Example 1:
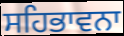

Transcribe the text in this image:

ਸਹਿਭਾਵਨਾ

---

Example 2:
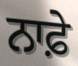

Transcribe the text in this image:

ਨਾਫ਼ੇ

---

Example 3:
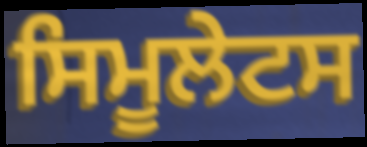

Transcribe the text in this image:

ਸਿਮੂਲੇਟਸ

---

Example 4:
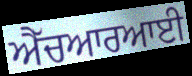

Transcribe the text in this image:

ਐੱਚਆਰਆਈ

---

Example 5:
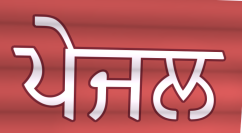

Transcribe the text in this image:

ਪੇਜਲ